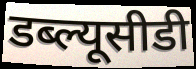
डब्ल्यूसीडी